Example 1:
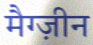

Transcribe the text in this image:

मैग्ज़ीन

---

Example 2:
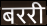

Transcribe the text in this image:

बररी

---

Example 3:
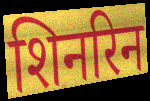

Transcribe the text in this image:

शिनरिन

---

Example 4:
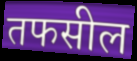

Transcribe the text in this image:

तफसील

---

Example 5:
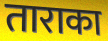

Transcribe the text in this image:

ताराका